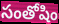
సంతోషిం